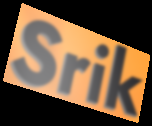
Srik